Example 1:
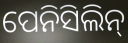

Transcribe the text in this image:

ପେନିସିଲିନ୍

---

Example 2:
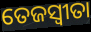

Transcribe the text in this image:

ତେଜସ୍ଵୀତା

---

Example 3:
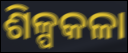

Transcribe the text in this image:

ଶିଳ୍ପକଳା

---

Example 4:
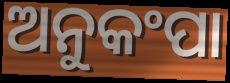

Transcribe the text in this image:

ଅନୁକଂପା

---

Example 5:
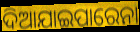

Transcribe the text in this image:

ଦିଆଯାଇପାରେନା